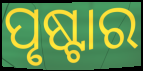
ପୃଷ୍ଟାର